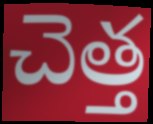
చెత్త